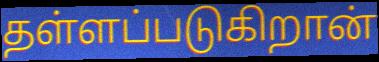
தள்ளப்படுகிறான்